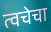
त्वचेचा